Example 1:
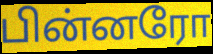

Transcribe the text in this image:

பின்னரோ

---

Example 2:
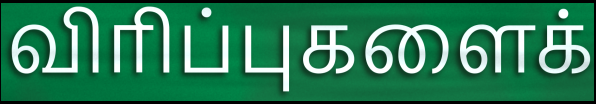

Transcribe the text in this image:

விரிப்புகளைக்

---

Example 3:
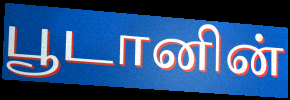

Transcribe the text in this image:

பூடானின்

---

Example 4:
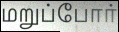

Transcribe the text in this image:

மறுப்போர்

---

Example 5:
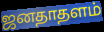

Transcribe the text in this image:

ஜனதாதளம்